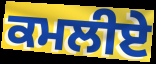
ਕਮਲੀਏ